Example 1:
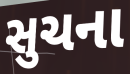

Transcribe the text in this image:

સુચના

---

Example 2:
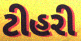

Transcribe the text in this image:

ટીહરી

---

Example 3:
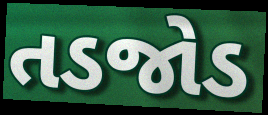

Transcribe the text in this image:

તડજોડ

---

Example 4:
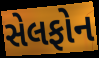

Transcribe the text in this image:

સેલફોન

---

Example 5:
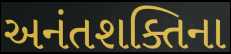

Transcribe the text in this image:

અનંતશક્તિના